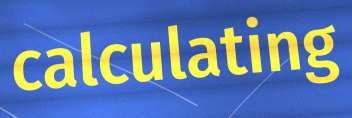
calculating